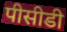
पीसीडी